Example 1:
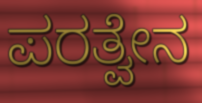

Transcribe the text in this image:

ಪರತ್ವೇನ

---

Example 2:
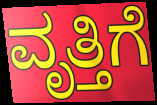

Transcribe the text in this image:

ವೃತ್ತಿಗೆ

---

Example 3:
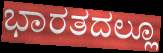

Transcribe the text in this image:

ಭಾರತದಲ್ಲೂ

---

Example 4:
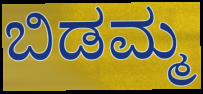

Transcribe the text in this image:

ಬಿಡಮ್ಮ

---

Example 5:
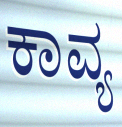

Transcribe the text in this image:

ಕಾವ್ಯ